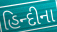
હિન્દીના